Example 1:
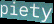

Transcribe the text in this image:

piety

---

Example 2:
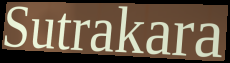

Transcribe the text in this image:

Sutrakara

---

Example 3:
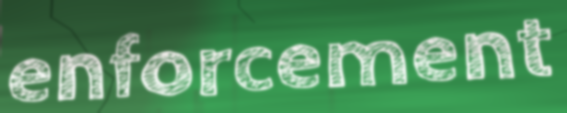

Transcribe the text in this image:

enforcement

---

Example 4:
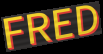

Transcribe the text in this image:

FRED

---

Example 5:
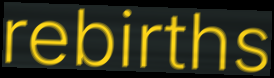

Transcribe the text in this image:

rebirths